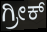
ಗ್ರೀಕ್